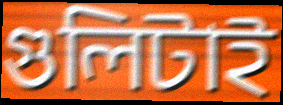
গুলিটাই